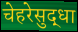
चेहरेसुद्धा